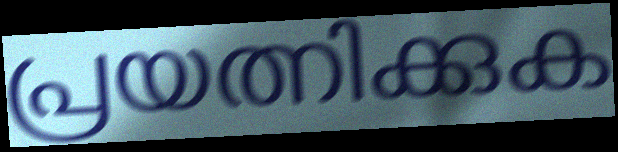
പ്രയത്നിക്കുക